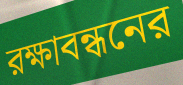
রক্ষাবন্ধনের